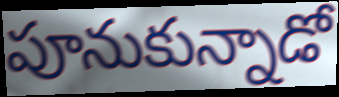
పూనుకున్నాడో